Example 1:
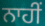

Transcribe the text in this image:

ਨਾਹੀਂ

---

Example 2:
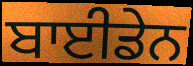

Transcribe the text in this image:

ਬਾਈਡੇਨ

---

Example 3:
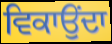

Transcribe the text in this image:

ਵਿਕਾਉੰਦਾ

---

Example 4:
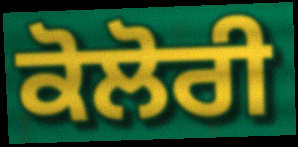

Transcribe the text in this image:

ਕੋਲੋਰੀ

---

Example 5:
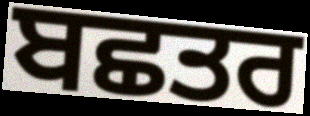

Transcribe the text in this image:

ਬਛਤਰ